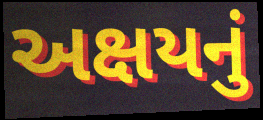
અક્ષયનું